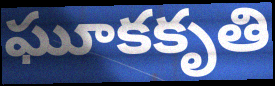
ఘూకకృతి